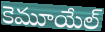
కెమూయేల్